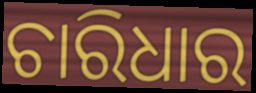
ଚାରିଧାର